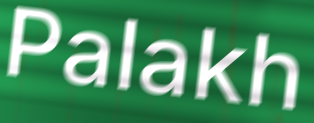
Palakh